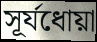
সূর্যধোয়া